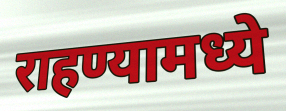
राहण्यामध्ये